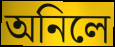
অনিলে